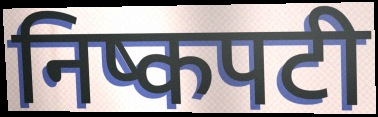
निष्कपटी